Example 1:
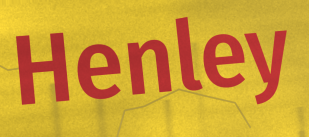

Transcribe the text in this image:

Henley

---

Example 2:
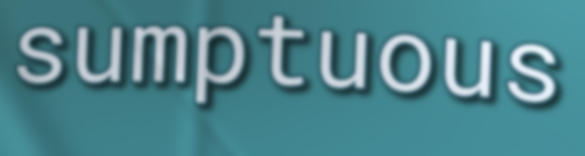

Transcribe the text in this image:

sumptuous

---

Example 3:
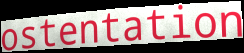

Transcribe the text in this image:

ostentation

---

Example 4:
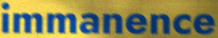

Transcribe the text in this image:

immanence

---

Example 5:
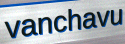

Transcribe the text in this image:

vanchavu